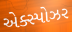
એક્સ્પોઝર